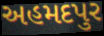
અહમદપુર